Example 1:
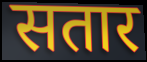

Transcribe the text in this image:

सतार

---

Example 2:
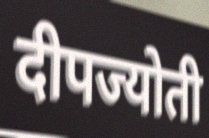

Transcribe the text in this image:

दीपज्योती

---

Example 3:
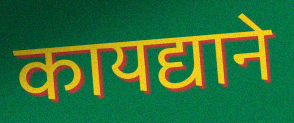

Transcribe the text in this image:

कायद्याने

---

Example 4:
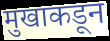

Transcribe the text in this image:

मुखाकडून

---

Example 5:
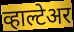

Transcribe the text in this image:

व्हाल्टेअर